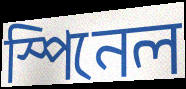
স্পিনেল